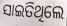
ସାଇତିଥିଲେ